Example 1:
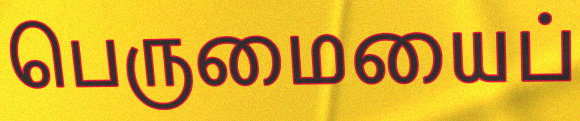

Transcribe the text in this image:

பெருமையைப்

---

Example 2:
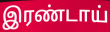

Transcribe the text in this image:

இரண்டாய்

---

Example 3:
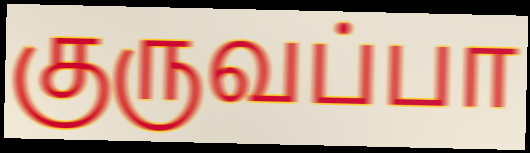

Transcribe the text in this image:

குருவப்பா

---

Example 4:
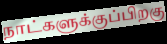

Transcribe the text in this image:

நாட்களுக்குப்பிறகு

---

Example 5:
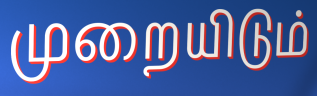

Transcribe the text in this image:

முறையிடும்